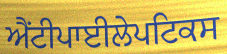
ਐਂਟੀਪਾਈਲੇਪਟਿਕਸ